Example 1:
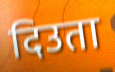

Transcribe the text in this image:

दिउता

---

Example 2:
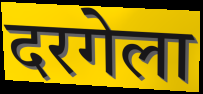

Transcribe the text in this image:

दरगेला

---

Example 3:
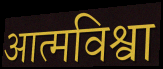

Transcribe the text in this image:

आत्मविश्वा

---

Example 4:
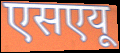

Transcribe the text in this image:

एसएयू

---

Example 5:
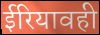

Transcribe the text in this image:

ईरियावही